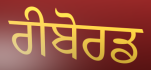
ਰੀਬੋਰਡ